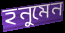
হনুমেন